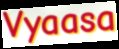
Vyaasa